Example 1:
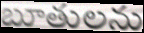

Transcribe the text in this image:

బూతులను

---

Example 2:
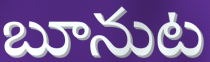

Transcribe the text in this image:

బూనుట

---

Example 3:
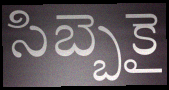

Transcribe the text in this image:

సిబ్బెకై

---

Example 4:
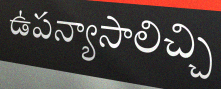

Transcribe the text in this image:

ఉపన్యాసాలిచ్చి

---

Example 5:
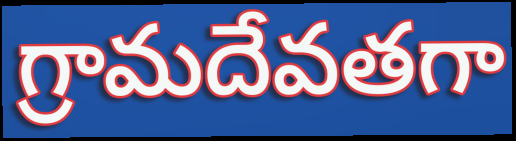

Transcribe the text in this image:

గ్రామదేవతగా